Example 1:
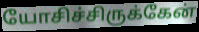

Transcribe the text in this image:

யோசிச்சிருக்கேன்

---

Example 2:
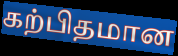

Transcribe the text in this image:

கற்பிதமான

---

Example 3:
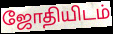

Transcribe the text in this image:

ஜோதியிடம்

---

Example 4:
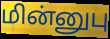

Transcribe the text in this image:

மின்னுபு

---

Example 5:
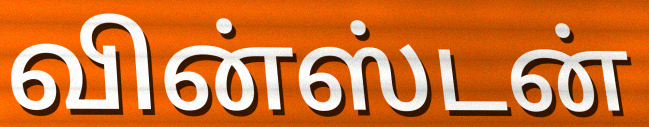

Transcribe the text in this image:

வின்ஸ்டன்